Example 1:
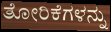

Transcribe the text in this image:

ತೋರಿಕೆಗಳನ್ನು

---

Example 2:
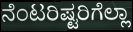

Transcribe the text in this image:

ನೆಂಟರಿಷ್ಟರಿಗೆಲ್ಲಾ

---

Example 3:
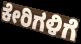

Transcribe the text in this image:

ಕೇರಿಗಳಿಗೆ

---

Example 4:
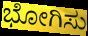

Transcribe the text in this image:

ಭೋಗಿಸು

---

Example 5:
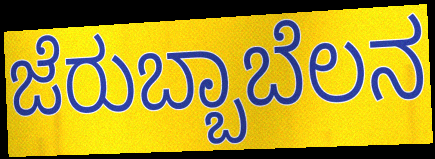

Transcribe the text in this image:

ಜೆರುಬ್ಬಾಬೆಲನ